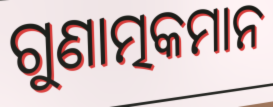
ଗୁଣାତ୍ମକମାନ